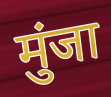
मुंजा